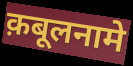
क़बूलनामे